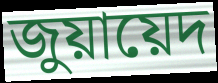
জুয়ায়েদ